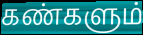
கண்களும்